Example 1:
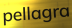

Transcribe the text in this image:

pellagra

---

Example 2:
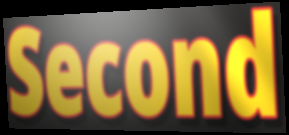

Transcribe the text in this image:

Second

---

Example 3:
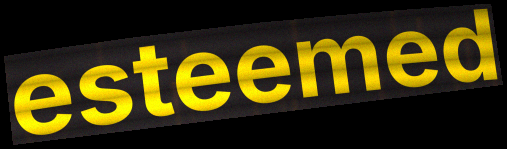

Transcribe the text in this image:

esteemed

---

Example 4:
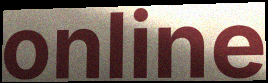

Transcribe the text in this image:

online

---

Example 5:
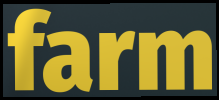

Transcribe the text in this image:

farm